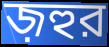
জ়হুর